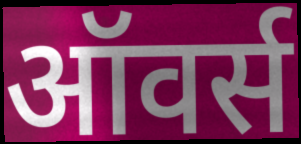
ऑवर्स